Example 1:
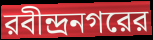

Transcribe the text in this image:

রবীন্দ্রনগরের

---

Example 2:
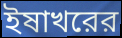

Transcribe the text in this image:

ইষাখরের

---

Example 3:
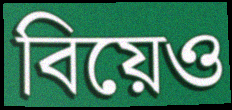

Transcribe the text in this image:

বিয়েও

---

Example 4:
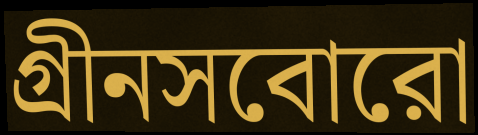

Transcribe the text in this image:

গ্রীনসবোরো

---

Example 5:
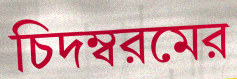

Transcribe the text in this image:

চিদম্বরমের